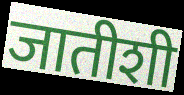
जातीशी